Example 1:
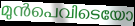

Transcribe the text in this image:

മുൻപെവിടെയോ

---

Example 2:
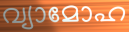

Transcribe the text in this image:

വ്യാമോഹ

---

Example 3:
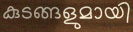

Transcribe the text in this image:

കുടങ്ങളുമായി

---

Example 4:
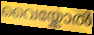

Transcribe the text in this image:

വൈയ്ക്കോൽ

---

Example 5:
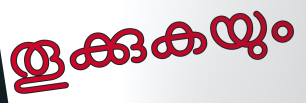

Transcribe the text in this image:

തൂക്കുകയും